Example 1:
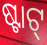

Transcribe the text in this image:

ଷ୍ଟାଟ୍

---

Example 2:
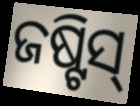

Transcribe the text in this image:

ଜଷ୍ଟିସ୍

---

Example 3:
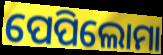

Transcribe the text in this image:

ପେପିଲୋମା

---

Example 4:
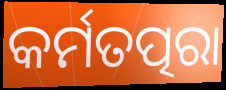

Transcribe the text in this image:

କର୍ମତତ୍ପରା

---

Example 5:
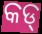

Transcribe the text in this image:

କଡ୍